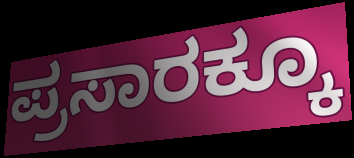
ಪ್ರಸಾರಕ್ಕೂ